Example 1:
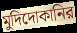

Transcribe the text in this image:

মুদিদোকানির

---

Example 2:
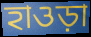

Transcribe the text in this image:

হাওড়া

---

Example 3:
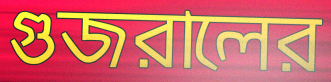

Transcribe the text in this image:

গুজরালের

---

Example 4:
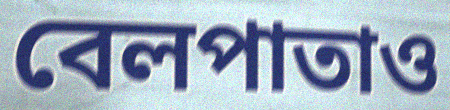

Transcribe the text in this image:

বেলপাতাও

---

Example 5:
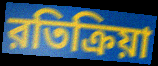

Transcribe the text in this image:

রতিক্রিয়া